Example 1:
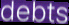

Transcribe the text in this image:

debts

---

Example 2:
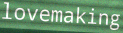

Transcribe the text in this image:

lovemaking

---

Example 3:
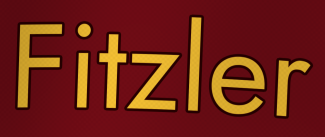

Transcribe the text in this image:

Fitzler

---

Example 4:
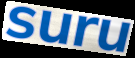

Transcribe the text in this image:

suru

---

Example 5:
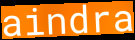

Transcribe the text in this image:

aindra